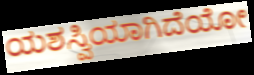
ಯಶಸ್ವಿಯಾಗಿದೆಯೋ